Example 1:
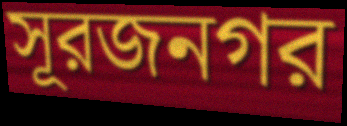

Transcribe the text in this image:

সূরজনগর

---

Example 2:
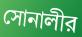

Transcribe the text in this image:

সোনালীর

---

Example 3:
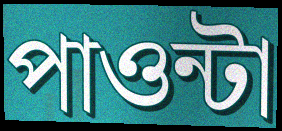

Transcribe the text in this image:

পাওন্টা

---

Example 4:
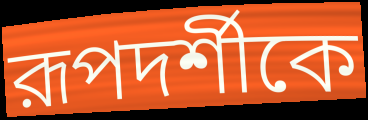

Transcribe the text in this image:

রূপদর্শীকে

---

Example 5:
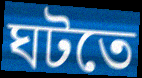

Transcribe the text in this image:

ঘটতে